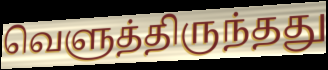
வெளுத்திருந்தது